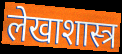
लेखाशास्त्र